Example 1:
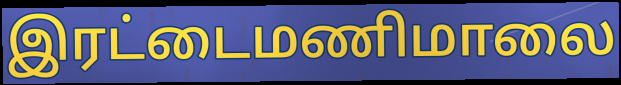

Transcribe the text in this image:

இரட்டைமணிமாலை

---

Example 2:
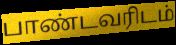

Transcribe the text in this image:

பாண்டவரிடம்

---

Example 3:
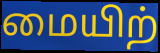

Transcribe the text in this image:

மையிற்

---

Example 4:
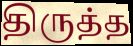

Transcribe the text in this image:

திருத்த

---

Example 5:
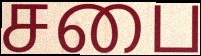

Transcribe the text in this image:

சபை